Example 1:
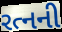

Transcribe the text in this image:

રત્નની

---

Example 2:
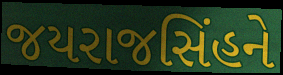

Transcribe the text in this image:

જયરાજસિંહને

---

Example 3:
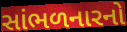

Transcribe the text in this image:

સાંભળનારનો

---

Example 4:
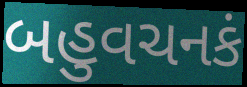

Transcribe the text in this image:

બહુવચનકં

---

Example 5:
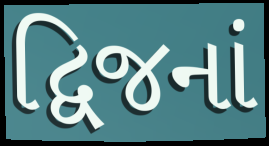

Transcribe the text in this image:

દ્વિજનાં